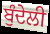
ਬੁੰਦੇਲੀ